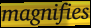
magnifies